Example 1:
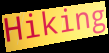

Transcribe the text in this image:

Hiking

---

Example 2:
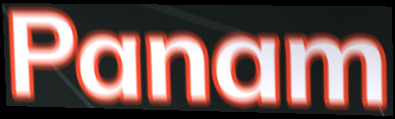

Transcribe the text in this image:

Panam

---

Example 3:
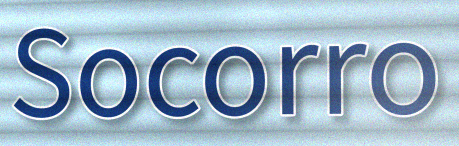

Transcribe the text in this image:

Socorro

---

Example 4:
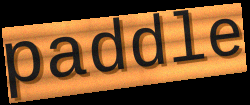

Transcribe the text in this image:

paddle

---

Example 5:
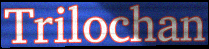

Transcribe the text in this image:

Trilochan